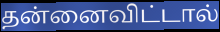
தன்னைவிட்டால்